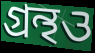
গ্রন্থও